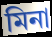
মিনা